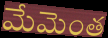
మేమెంత